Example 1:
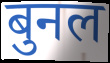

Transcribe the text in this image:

बुनल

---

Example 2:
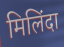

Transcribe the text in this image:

मिलिंदा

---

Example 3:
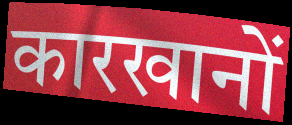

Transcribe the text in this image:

कारखानों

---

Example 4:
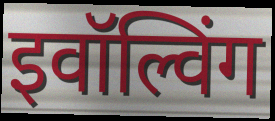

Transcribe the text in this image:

इवॉल्विंग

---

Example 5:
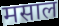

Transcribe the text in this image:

मसाल